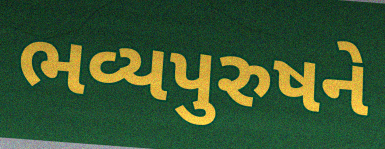
ભવ્યપુરુષને